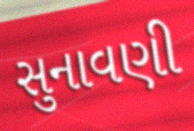
સુનાવણી